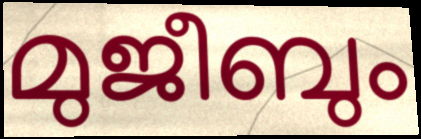
മുജീബും